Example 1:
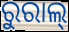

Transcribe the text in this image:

ରୁରାଲ୍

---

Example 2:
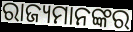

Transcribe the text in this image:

ରାଜ୍ୟମାନଙ୍କର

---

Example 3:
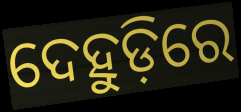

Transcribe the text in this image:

ଦେହୁଡ଼ିରେ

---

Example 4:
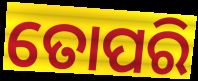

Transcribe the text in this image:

ତୋପରି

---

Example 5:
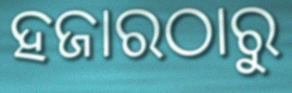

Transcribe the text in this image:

ହଜାରଠାରୁ